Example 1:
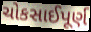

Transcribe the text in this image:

ચોકસાઈપૂર્ણ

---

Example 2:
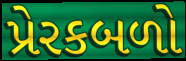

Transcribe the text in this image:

પ્રેરકબળો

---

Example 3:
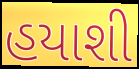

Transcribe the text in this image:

હયાશી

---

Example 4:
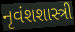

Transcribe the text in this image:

નૃવંશશાસ્ત્રી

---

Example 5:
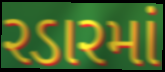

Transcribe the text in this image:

રડારમાં